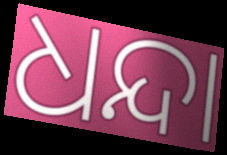
ଧନ୍ଦା